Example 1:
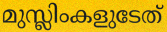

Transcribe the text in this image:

മുസ്ലിംകളുടേത്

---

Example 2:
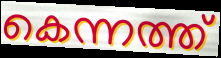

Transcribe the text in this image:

കെന്നത്ത്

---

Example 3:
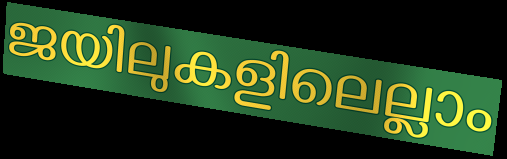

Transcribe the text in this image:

ജയിലുകളിലെല്ലാം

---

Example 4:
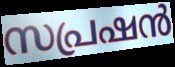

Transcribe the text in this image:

സപ്രഷൻ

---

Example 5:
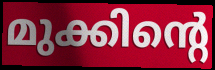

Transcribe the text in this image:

മുക്കിന്റെ